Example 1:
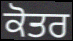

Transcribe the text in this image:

ਕੋਤਰ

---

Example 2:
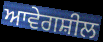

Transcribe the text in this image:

ਆਵੇਗਸ਼ੀਲ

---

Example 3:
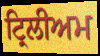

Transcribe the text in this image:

ਟ੍ਰਿਲੀਅਮ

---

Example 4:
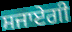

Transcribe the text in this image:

ਸਜਾਏਗੀ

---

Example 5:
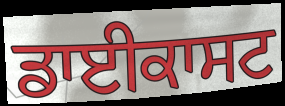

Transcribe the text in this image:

ਡਾਈਕਾਸਟ